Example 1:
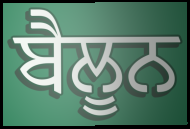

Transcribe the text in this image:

ਬੈਲੂਨ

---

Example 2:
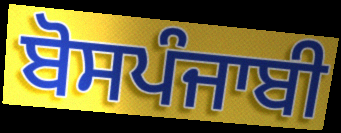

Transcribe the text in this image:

ਬੋਸਪੰਜਾਬੀ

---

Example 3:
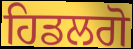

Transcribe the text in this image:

ਹਿਡਲਗੋ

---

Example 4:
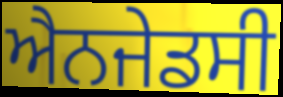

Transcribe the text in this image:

ਐਨਜੇਡਸੀ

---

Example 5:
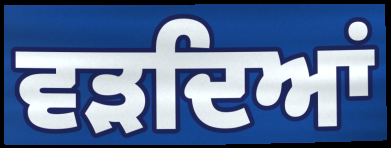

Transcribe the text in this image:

ਵੜਦਿਆਂ